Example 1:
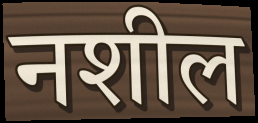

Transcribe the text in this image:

नशील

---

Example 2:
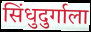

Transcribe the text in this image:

सिंधुदुर्गाला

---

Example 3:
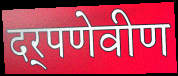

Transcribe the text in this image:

दर्पणेवीण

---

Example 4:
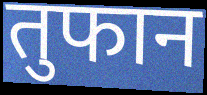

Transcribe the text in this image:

तुफान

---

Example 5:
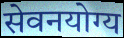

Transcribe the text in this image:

सेवनयोग्य